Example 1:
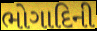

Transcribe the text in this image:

ભોગાદિની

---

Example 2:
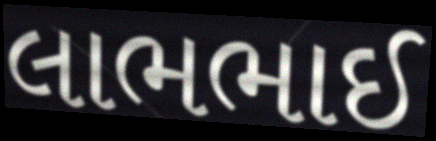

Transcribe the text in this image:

લાભભાઈ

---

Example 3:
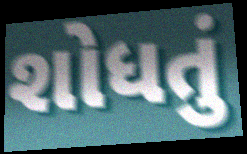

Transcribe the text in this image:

શોધતું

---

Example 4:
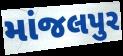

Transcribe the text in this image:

માંજલપુર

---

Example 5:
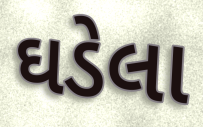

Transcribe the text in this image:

ઘડેલા